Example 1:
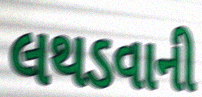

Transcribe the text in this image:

લથડવાની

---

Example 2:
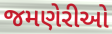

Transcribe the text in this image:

જમણેરીઓ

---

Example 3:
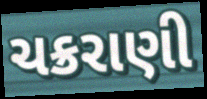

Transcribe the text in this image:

ચક્રરાણી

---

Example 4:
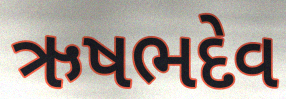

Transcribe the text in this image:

ઋષભદેવ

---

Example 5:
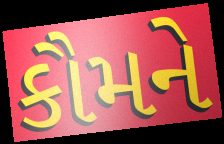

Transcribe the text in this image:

કૌમને